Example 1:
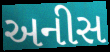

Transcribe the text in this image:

અનીસ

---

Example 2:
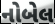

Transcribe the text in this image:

નોબેલ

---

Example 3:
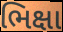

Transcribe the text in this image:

ભિક્ષા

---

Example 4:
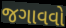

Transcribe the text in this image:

જગાવવો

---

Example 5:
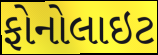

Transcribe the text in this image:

ફોનોલાઇટ